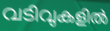
വടിവുകളിൽ